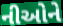
નીઓને